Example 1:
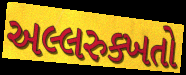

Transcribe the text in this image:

અલ્લરુક્ખતો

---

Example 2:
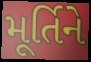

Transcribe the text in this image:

મૂર્તિને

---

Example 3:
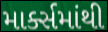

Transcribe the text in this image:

માર્ક્સમાંથી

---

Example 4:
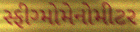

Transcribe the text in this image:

સ્ફીગ્મોમેનોમીટર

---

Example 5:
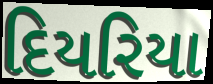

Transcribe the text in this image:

દિયરિયા